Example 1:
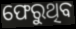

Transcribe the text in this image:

ଫେରୁଥିବ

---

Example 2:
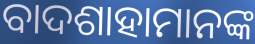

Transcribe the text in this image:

ବାଦଶାହାମାନଙ୍କ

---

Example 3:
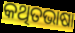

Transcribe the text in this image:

କଥିତଭାଷା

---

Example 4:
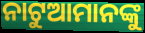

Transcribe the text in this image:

ନାଟୁଆମାନଙ୍କୁ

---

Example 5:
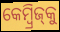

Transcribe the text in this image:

କେମ୍ୱ୍ରିଜ୍‌କୁ